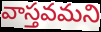
వాస్తవమని